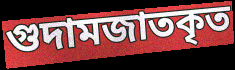
গুদামজাতকৃত